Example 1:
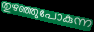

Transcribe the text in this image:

തുഴഞ്ഞുപോകുന്ന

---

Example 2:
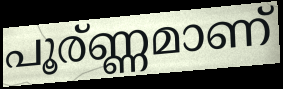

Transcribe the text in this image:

പൂര്ണ്ണമാണ്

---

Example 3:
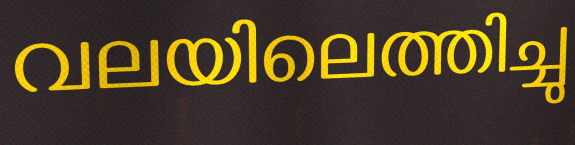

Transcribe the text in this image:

വലയിലെത്തിച്ചു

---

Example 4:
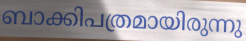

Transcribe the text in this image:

ബാക്കിപത്രമായിരുന്നു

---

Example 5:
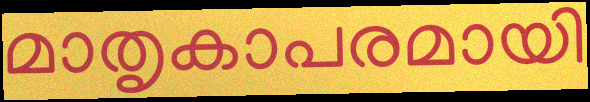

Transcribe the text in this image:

മാതൃകാപരമായി